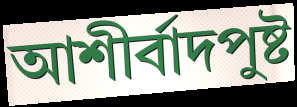
আশীর্বাদপুষ্ট